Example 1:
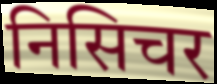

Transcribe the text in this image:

निसिचर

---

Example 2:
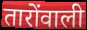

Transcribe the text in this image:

तारोंवाली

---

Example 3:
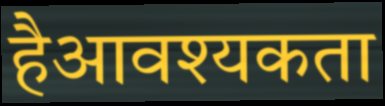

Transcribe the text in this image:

हैआवश्यकता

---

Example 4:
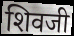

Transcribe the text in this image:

शिवजी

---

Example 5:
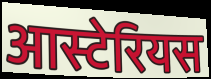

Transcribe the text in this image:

आस्टेरियस